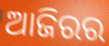
ଆଜିରର